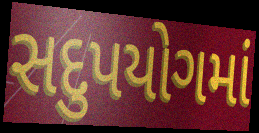
સદુપયોગમાં